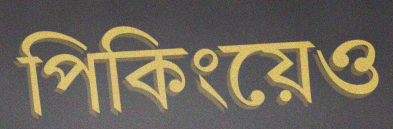
পিকিংয়েও